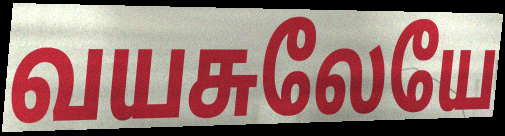
வயசுலேயே